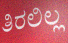
ತಿರಲಿಲ್ಲ